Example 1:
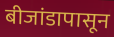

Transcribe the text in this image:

बीजांडापासून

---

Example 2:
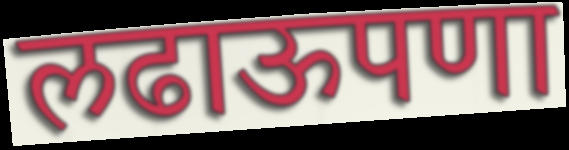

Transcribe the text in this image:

लढाऊपणा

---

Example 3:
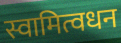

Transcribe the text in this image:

स्वामित्वधन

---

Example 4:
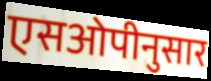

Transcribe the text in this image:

एसओपीनुसार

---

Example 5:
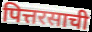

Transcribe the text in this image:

पित्तरसाची